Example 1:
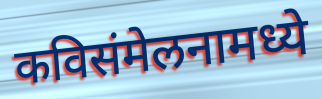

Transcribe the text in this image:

कविसंमेलनामध्ये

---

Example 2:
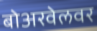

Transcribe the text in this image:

बोअरवेलवर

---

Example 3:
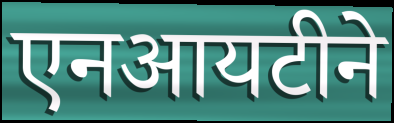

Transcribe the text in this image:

एनआयटीने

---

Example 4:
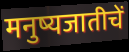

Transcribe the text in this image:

मनुष्यजातीचें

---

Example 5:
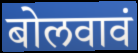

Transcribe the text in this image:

बोलवावं